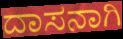
ದಾಸನಾಗಿ